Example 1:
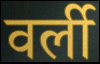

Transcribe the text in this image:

वर्ली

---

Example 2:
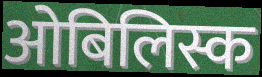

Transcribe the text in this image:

ओबिलिस्क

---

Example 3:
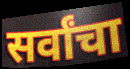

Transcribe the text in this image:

सर्वांचा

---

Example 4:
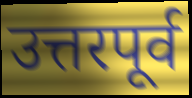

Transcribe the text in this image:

उत्तरपूर्व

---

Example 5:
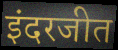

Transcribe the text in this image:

इंदरजीत